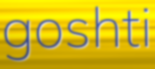
goshti